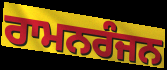
ਰਾਮਨਰੰਜਨ